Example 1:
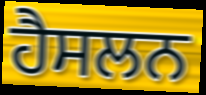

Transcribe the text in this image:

ਹੈਸਲਨ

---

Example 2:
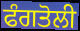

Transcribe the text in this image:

ਫੰਗਤੋਲੀ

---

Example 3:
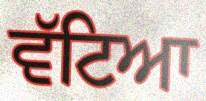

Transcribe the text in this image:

ਵੱਟਿਆ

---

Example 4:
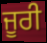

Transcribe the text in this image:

ਜੂਰੀ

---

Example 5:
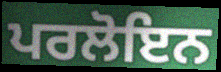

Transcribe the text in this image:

ਪਰਲੋਇਨ